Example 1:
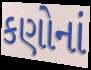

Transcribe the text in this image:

કણોનાં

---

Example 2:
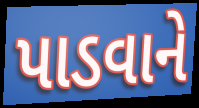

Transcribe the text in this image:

પાડવાને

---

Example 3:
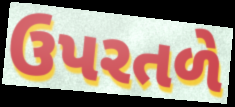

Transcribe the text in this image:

ઉપરતળે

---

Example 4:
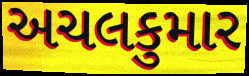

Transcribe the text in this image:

અચલકુમાર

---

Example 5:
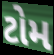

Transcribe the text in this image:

ટોમ